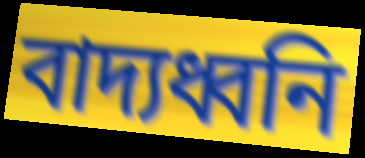
বাদ্যধ্বনি